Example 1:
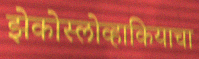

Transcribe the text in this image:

झेकोस्लोव्हाकियाचा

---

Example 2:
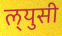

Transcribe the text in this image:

ल्युसी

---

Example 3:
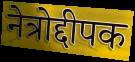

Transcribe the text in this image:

नेत्रोद्दीपक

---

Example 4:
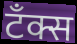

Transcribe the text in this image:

टँक्स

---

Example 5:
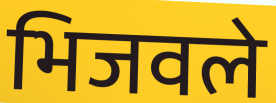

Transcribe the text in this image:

भिजवले